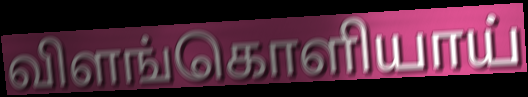
விளங்கொளியாய்